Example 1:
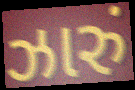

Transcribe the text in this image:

ઝારું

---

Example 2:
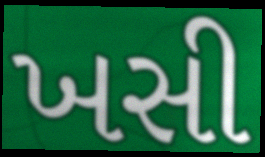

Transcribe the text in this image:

ખસી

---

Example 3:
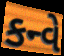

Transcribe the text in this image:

કન્વે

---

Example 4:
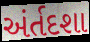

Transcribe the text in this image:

અંર્તદશા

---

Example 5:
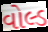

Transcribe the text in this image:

વોલ્ડ